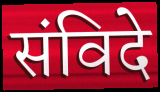
संविदे